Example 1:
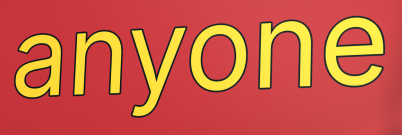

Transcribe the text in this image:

anyone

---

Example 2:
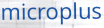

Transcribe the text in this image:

microplus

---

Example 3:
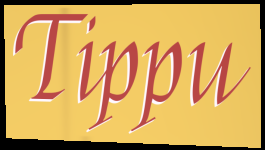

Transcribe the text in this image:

Tippu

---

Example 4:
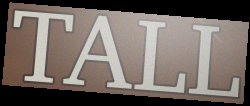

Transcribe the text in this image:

TALL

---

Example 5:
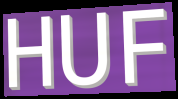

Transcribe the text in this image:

HUF